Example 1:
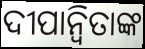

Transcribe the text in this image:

ଦୀପାନ୍ୱିତାଙ୍କ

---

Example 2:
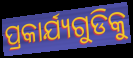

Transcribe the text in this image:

ପ୍ରକାର୍ଯ୍ୟଗୁଡିକୁ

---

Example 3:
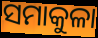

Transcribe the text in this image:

ସମାକୁଳା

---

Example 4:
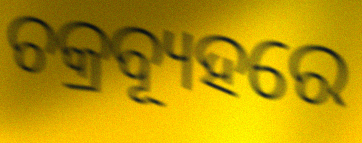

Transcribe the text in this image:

ଚକ୍ରବ୍ୟୂହରେ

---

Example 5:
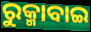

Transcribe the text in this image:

ରୁକ୍ମାବାଇ